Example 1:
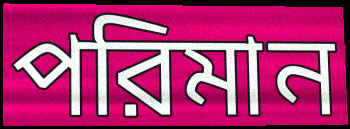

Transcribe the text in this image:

পরিমান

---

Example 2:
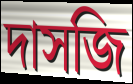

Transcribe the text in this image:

দাসজি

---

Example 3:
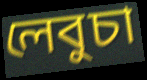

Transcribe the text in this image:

লেবুচা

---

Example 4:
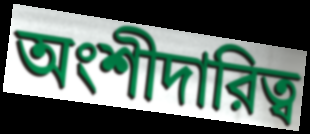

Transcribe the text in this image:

অংশীদারিত্ব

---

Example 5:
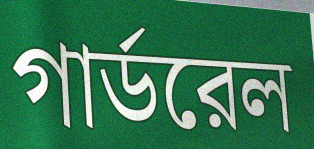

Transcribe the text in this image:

গার্ডরেল